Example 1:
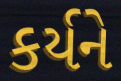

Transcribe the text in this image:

કર્યને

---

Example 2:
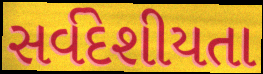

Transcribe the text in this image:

સર્વદેશીયતા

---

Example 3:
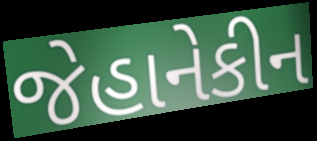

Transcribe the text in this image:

જેહાનેકીન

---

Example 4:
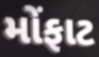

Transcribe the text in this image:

મોંફાટ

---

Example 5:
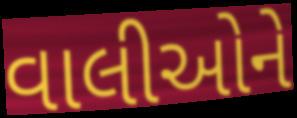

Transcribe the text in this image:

વાલીઓને